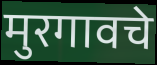
मुरगावचे